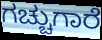
ಗಚ್ಚುಗಾರೆ